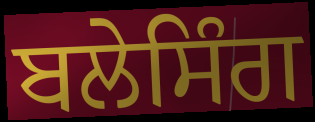
ਬਲੇਸਿੰਗ